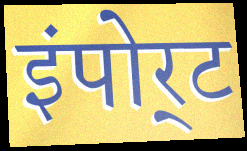
इंपोर्ट